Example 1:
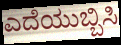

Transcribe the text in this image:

ಎದೆಯುಬ್ಬಿಸಿ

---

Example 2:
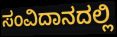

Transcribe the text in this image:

ಸಂವಿದಾನದಲ್ಲಿ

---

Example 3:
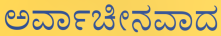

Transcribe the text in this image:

ಅರ್ವಾಚೀನವಾದ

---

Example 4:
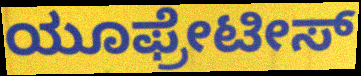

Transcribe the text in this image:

ಯೂಫ್ರೇಟೀಸ್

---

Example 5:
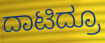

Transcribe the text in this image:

ದಾಟಿದ್ರೂ